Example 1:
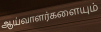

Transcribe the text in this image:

ஆய்வாளர்களையும்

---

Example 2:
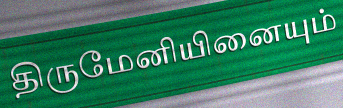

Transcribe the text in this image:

திருமேனியினையும்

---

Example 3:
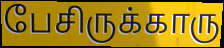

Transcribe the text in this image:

பேசிருக்காரு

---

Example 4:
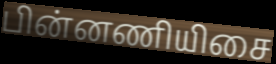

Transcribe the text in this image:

பின்னணியிசை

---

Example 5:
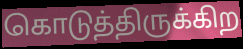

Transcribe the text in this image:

கொடுத்திருக்கிற